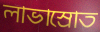
লাভাস্রোত